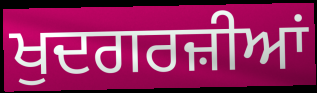
ਖੁਦਗਰਜ਼ੀਆਂ